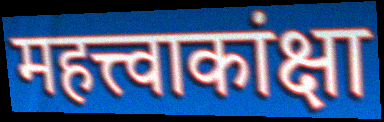
महत्त्वाकांक्षा